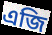
এজি